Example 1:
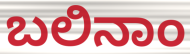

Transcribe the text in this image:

ಬಲಿನಾಂ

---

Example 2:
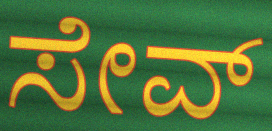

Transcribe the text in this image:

ಸೇವ್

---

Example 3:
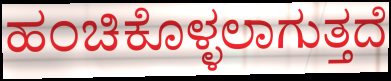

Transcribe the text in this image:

ಹಂಚಿಕೊಳ್ಳಲಾಗುತ್ತದೆ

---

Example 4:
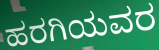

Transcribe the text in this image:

ಹರಗಿಯವರ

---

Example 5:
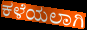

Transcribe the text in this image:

ಕಳೆಯಲಾಗಿ